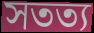
সতত্য